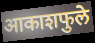
आकाशफुले